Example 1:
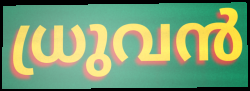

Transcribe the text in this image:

ധ്രുവൻ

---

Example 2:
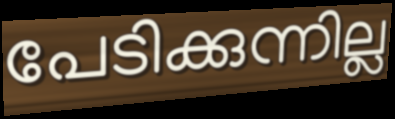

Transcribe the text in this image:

പേടിക്കുന്നില്ല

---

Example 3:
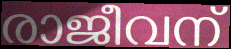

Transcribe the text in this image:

രാജീവന്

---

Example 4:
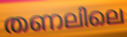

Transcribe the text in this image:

തണലിലെ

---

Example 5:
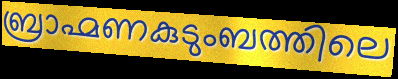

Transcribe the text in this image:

ബ്രാഹ്മണകുടുംബത്തിലെ